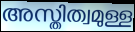
അസ്തിത്വമുള്ള